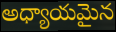
అధ్యాయమైన